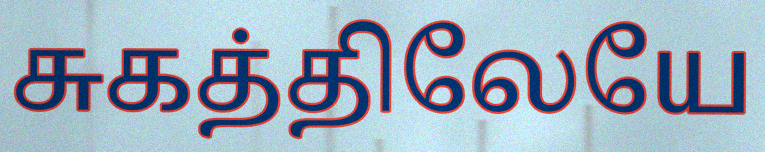
சுகத்திலேயே